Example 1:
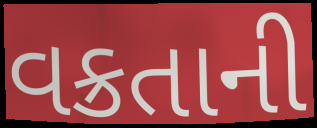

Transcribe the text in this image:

વક્રતાની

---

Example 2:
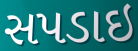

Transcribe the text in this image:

સપડાઇ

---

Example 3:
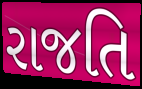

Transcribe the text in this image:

રાજતિ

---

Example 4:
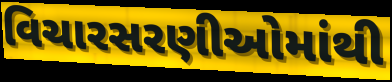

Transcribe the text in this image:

વિચારસરણીઓમાંથી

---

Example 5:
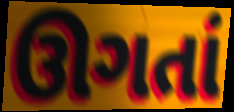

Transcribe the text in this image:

ઊગતાં